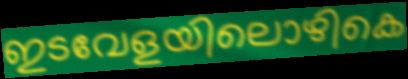
ഇടവേളയിലൊഴികെ